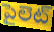
పైలెట్